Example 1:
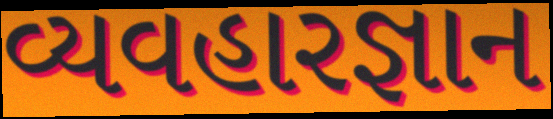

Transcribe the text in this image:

વ્યવહારજ્ઞાન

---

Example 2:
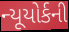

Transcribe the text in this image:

ન્યૂયોર્કની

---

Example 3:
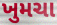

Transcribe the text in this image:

ખુમચા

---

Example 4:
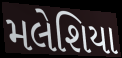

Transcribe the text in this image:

મલેશિયા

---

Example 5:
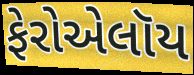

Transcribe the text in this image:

ફેરોએલૉય